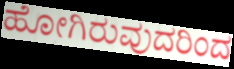
ಹೋಗಿರುವುದರಿಂದ